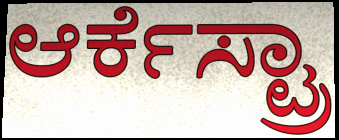
ಆರ್ಕೆಸ್ಟ್ರಾ